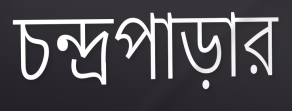
চন্দ্রপাড়ার